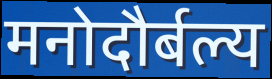
मनोदौर्बल्य